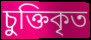
চুক্তিকৃত